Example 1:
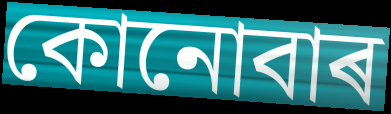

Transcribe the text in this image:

কোনোবাৰ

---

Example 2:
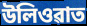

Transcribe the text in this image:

উলিওৱাত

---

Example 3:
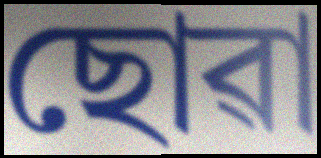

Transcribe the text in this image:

ছোৱা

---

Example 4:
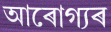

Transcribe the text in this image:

আৰোগ্যৰ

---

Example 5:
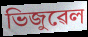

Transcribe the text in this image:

ভিজুৱেল